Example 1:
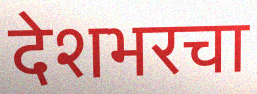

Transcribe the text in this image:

देशभरचा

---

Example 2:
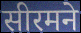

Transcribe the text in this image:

सीरमने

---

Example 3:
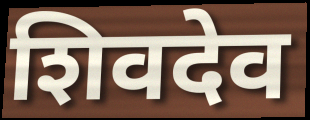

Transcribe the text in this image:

शिवदेव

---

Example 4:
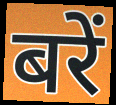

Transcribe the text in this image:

बरें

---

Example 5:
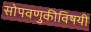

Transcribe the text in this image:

सोपवणुकीविषयी